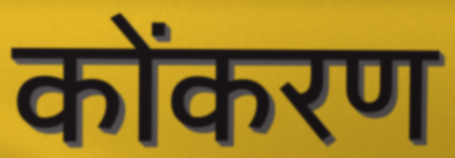
कोंकरण